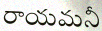
రాయమనీ